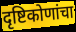
दृष्टिकोणांचा